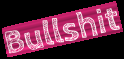
Bullshit